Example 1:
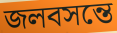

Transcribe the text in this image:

জলবসন্তে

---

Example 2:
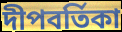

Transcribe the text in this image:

দীপবর্তিকা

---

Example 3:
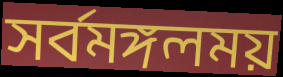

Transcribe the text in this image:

সর্বমঙ্গলময়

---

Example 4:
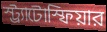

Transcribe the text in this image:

স্ট্র্যাটোস্ফিয়ার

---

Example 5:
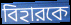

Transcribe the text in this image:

বিহারকে